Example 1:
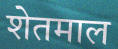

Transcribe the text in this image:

शेतमाल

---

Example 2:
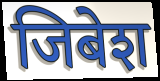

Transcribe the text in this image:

जिबेश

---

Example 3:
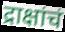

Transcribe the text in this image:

द्राक्षांचं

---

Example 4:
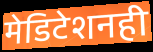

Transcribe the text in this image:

मेडिटेशनही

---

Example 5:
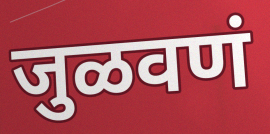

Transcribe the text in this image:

जुळवणं